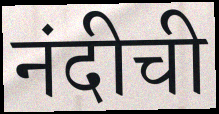
नंदीची